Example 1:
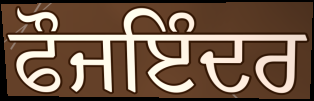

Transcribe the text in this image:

ਫੌਜਇੰਦਰ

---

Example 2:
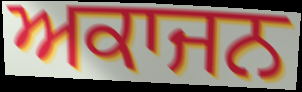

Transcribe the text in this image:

ਅਕਾਜਨ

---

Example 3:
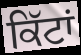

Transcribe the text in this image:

ਕਿੱਟਾਂ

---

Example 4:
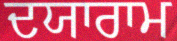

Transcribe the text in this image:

ਦਯਾਰਾਮ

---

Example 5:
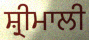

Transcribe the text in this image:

ਸ਼੍ਰੀਮਾਲੀ